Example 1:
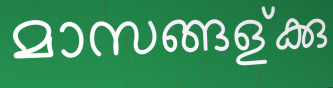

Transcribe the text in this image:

മാസങ്ങള്ക്കു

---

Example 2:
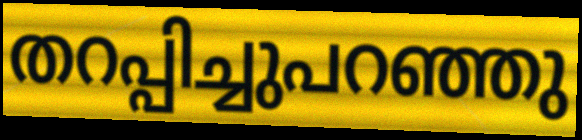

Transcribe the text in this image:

തറപ്പിച്ചുപറഞ്ഞു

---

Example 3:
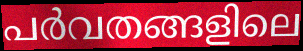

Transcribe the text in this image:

പർവതങ്ങളിലെ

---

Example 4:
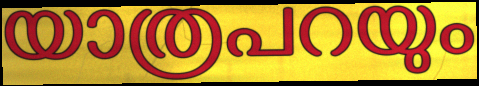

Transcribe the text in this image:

യാത്രപറയും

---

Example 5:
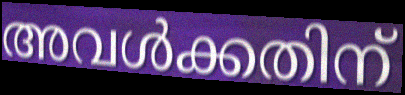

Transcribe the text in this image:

അവൾക്കതിന്